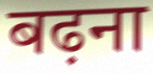
बढ़ना